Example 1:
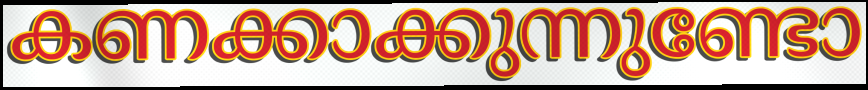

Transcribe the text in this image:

കണക്കാക്കുന്നുണ്ടോ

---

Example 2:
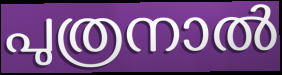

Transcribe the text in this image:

പുത്രനാൽ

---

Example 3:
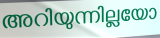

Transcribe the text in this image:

അറിയുന്നില്ലയോ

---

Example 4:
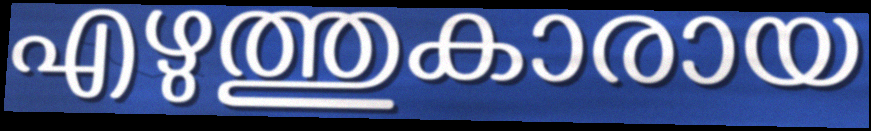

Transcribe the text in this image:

എഴുത്തുകാരായ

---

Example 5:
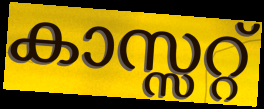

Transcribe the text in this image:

കാസ്സറ്റ്